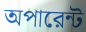
অপারেন্ট